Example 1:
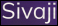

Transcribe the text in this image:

Sivaji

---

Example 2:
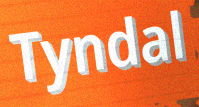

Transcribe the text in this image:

Tyndal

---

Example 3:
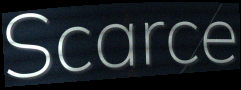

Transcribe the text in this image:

Scarce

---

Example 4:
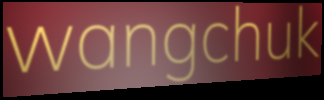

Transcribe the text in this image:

wangchuk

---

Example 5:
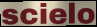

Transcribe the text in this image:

scielo